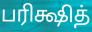
பரிக்ஷித்